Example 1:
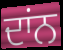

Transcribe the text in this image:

ਦਾਂਨ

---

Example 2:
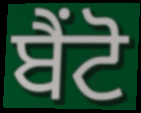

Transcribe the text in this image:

ਬੈਂਟੋ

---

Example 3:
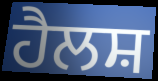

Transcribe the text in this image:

ਹੈਲਸ਼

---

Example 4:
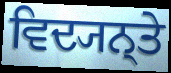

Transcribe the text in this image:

ਵਿਦ੍ਯਨ੍ਤੇ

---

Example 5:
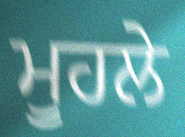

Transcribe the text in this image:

ਮੂਹਲੇ